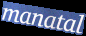
manatal